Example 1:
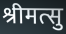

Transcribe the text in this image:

श्रीमत्सु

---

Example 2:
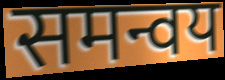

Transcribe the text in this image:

समन्वय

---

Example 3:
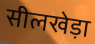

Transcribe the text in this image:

सीलखेड़ा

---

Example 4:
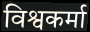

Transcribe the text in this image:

विश्वकर्मा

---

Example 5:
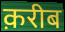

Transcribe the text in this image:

क़रीब